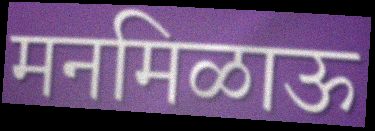
मनमिळाऊ